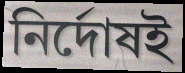
নির্দোষই